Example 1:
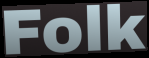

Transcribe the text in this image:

Folk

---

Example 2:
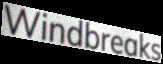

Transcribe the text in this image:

Windbreaks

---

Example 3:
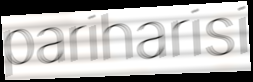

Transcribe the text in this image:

pariharisi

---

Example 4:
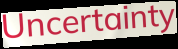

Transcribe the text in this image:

Uncertainty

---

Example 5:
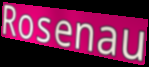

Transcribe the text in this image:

Rosenau